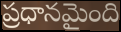
ప్రధానమైంది